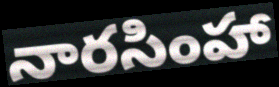
నారసింహా